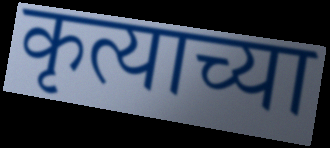
कृत्याच्या